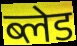
ब्लेड